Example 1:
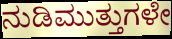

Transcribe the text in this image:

ನುಡಿಮುತ್ತುಗಳೇ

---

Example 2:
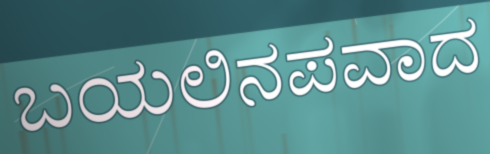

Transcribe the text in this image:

ಬಯಲಿನಪವಾದ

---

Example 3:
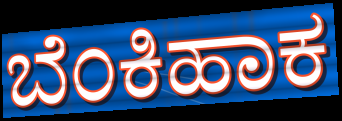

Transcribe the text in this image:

ಬೆಂಕಿಹಾಕ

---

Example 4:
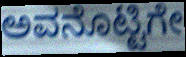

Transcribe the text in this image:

ಅವನೊಟ್ಟಿಗೇ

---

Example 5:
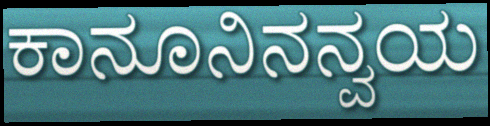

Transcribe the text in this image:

ಕಾನೂನಿನನ್ವಯ